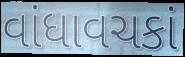
વાંધાવચકાં